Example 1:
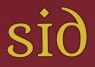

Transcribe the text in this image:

sid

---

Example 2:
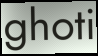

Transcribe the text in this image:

ghoti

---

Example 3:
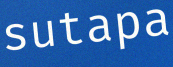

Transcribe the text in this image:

sutapa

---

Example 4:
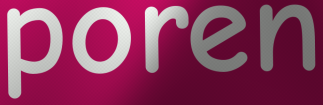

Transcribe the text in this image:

poren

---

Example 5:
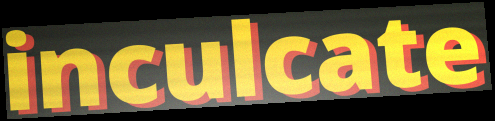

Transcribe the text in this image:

inculcate